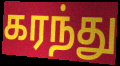
கரந்து